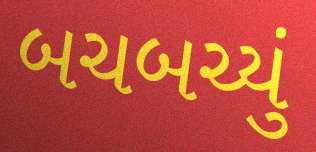
બચબચ્યું